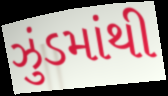
ઝુંડમાંથી